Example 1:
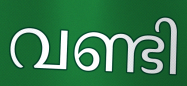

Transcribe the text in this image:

വണ്ടി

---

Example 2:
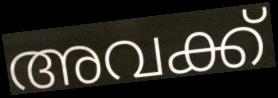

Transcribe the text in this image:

അവക്ക്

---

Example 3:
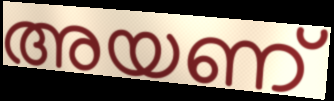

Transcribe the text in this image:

അയണ്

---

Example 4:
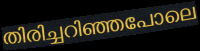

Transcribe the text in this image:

തിരിച്ചറിഞ്ഞപോലെ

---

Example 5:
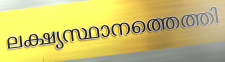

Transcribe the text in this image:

ലക്ഷ്യസ്ഥാനത്തെത്തി